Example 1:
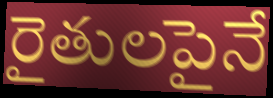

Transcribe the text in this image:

రైతులపైనే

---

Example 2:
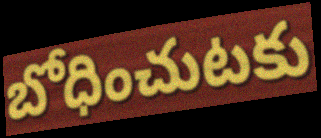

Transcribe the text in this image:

బోధించుటకు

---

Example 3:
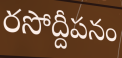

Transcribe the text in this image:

రసోద్దీపనం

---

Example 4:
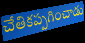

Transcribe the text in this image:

చేతికప్పగించాడు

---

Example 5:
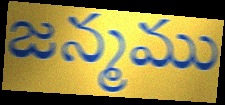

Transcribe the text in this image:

జన్మము